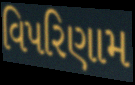
વિપરિણામ